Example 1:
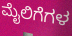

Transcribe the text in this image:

ಮೈಲಿಗೆಗಳ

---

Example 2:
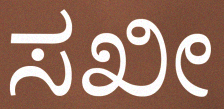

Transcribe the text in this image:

ಸಖೀ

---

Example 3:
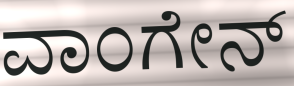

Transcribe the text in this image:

ವಾಂಗೇನ್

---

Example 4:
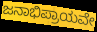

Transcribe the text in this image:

ಜನಾಭಿಪ್ರಾಯವೇ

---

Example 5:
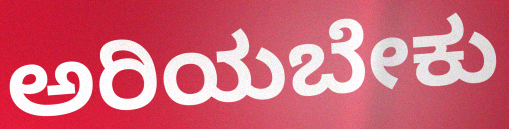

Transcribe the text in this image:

ಅರಿಯಬೇಕು